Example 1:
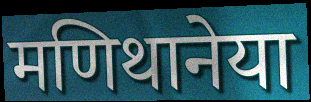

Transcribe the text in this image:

मणिथानेया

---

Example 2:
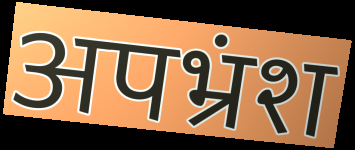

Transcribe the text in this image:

अपभ्रंश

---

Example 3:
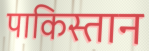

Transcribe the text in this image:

पाकिस्‍तान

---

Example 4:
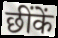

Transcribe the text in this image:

छींकें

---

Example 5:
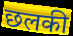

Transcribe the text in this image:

छलकी